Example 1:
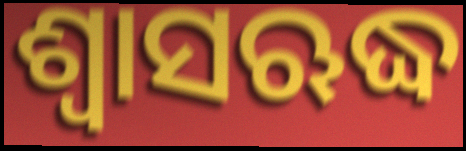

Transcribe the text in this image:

ଶ୍ୱାସଋଦ୍ଧ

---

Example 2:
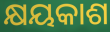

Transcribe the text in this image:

କ୍ଷୟକାଶ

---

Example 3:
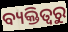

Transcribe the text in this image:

ବ୍ୟକ୍ତିତ୍ୱରୁ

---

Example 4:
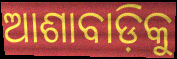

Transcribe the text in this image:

ଆଶାବାଡ଼ିକୁ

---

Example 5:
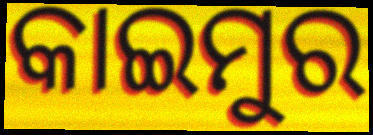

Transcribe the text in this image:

କାଇମୁର